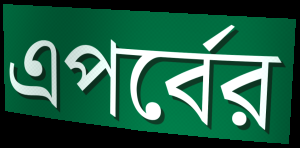
এপর্বের